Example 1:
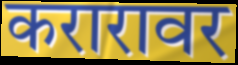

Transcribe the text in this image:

करारावर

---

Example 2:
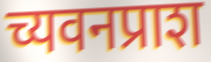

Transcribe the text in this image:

च्यवनप्राश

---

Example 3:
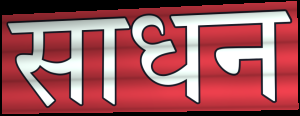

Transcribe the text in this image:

साधन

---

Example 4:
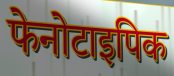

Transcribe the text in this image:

फेनोटाइपिक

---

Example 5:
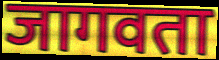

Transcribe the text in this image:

जागवता